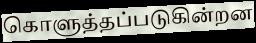
கொளுத்தப்படுகின்றன